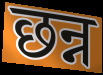
छन्न